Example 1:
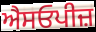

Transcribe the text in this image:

ਐਸਓਪੀਜ਼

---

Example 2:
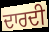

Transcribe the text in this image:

ਦਾਰਦੀ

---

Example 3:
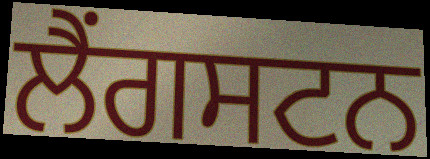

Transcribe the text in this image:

ਲੈਂਗਸਟਨ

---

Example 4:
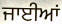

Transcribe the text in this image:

ਜਾਈਆਂ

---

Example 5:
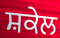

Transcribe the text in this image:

ਸ਼ਕੇਲ